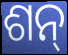
ଶନ୍